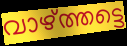
വാഴ്ത്തട്ടെ